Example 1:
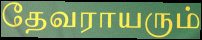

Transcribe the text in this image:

தேவராயரும்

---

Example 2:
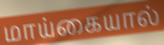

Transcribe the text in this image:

மாய்கையால்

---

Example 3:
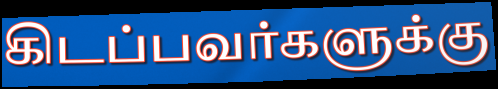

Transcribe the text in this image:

கிடப்பவர்களுக்கு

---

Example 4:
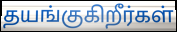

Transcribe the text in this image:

தயங்குகிறீர்கள்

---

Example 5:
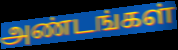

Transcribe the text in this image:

அண்டங்கள்